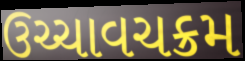
ઉચ્ચાવચક્રમ